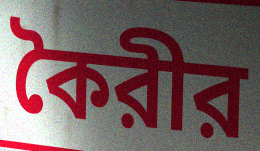
কৈরীর